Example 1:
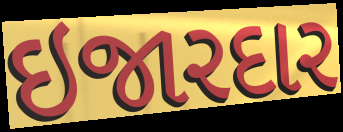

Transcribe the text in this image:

ઇજારદાર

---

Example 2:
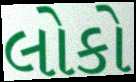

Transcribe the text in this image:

લોકો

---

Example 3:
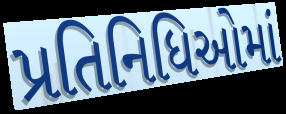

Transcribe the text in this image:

પ્રતિનિધિઓમાં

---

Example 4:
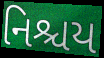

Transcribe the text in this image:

નિશ્ચય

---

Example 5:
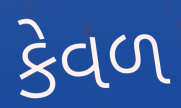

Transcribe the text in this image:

કેવળ